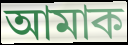
আমাক